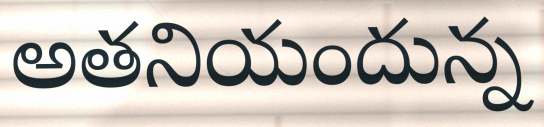
అతనియందున్న